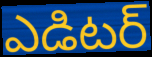
ఎడిటర్